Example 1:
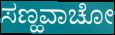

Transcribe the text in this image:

ಸಣ್ಹವಾಚೋ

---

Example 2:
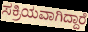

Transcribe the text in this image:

ಸಕ್ರಿಯವಾಗಿದ್ದಾರೆ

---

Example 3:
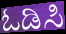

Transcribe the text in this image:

ಓಡಿಸಿ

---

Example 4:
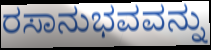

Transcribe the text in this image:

ರಸಾನುಭವವನ್ನು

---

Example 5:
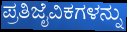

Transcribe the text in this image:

ಪ್ರತಿಜೈವಿಕಗಳನ್ನು